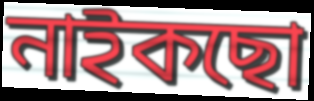
নাইকছো